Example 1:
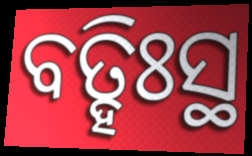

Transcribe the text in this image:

ବତ୍ହିଃସ୍ଥ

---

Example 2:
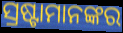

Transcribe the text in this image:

ସ୍ରଷ୍ଟାମାନଙ୍କର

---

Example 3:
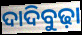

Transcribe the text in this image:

ଦାଦିବୁଢ଼ା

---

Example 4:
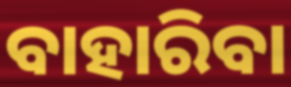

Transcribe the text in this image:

ବାହାରିବା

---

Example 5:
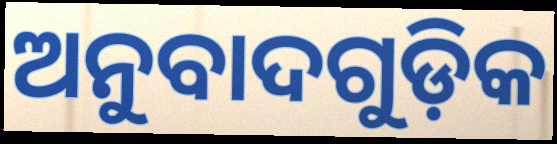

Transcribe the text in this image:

ଅନୁବାଦଗୁଡ଼ିକ